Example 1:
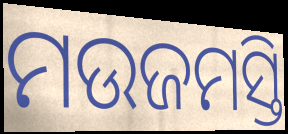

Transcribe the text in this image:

ମଉଜମସ୍ତି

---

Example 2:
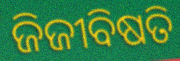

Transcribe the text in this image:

ଜିଜୀବିଷତି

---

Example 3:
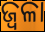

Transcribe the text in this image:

ଜ୍ଵଳା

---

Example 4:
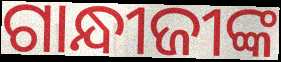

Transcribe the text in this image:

ଗାନ୍ଧୀଜୀଙ୍କ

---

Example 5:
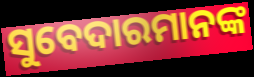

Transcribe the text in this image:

ସୁବେଦାରମାନଙ୍କ